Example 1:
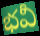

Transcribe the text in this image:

భవీ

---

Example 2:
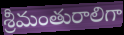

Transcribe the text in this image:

శ్రీమంతురాలిగా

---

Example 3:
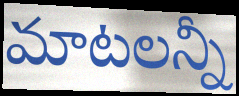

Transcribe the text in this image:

మాటలన్నీ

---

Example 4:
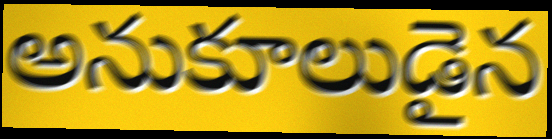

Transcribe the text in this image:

అనుకూలుడైన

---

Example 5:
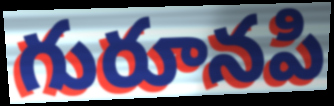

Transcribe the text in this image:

గురూనపి